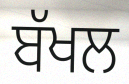
ਬੱਖਲ